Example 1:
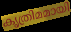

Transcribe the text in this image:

കൃത്രിമമായി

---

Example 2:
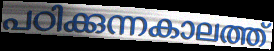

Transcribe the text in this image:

പഠിക്കുന്നകാലത്ത്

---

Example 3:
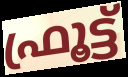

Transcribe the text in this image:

ഫ്രൂട്ട്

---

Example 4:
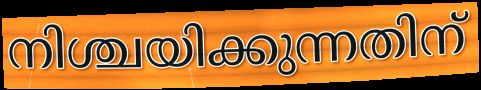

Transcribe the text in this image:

നിശ്ചയിക്കുന്നതിന്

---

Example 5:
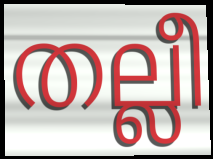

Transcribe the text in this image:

തല്ലീ